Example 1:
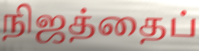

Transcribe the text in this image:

நிஜத்தைப்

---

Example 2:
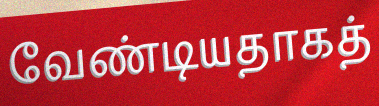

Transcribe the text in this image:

வேண்டியதாகத்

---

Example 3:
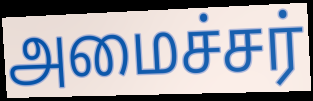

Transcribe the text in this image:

அமைச்சர்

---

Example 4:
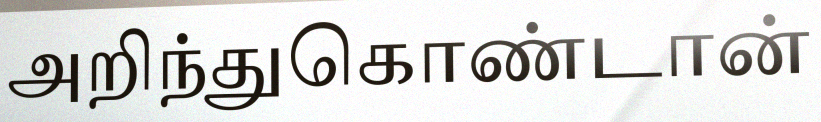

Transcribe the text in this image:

அறிந்துகொண்டான்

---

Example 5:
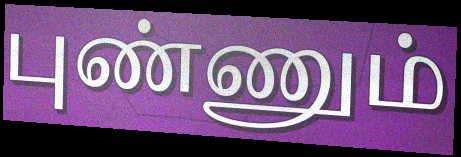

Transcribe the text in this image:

புண்ணும்